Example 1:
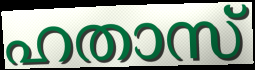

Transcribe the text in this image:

ഹതാസ്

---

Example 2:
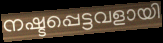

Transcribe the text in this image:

നഷ്ടപ്പെട്ടവളായി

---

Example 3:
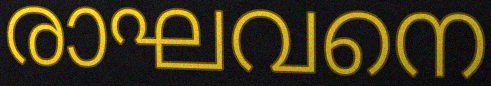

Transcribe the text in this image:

രാഘവനെ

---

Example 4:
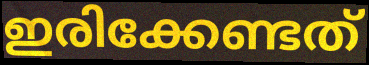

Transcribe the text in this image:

ഇരിക്കേണ്ടത്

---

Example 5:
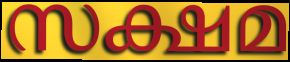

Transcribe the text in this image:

സക്ഷമ